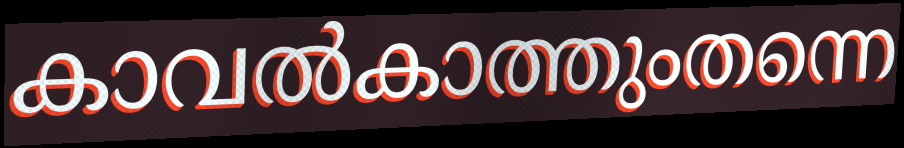
കാവൽകാത്തുംതന്നെ